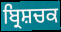
ਬ੍ਰਿਸ਼ਚਕ